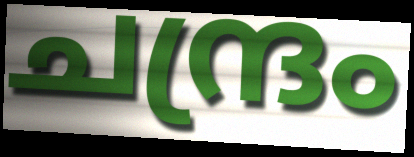
ചന്ദ്രം